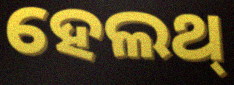
ହେଲଥ୍